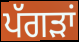
ਪੱਗੜਾਂ